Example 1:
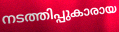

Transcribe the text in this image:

നടത്തിപ്പുകാരായ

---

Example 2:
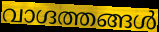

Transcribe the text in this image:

വാഗ്ദത്തങ്ങൾ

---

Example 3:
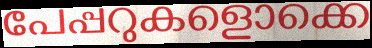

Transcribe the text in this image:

പേപ്പറുകളൊക്കെ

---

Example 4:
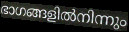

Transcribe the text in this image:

ഭാഗങ്ങളിൽനിന്നും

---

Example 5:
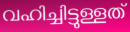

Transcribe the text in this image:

വഹിച്ചിട്ടുള്ളത്